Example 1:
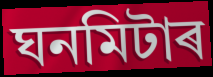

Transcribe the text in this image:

ঘনমিটাৰ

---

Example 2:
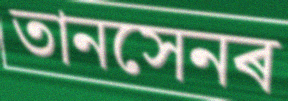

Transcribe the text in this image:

তানসেনৰ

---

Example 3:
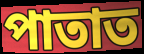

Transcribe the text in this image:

পাতাত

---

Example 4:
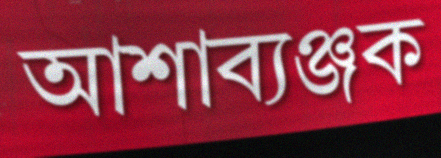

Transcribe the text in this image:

আশাব্যঞ্জক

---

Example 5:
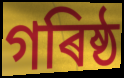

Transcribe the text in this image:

গৰিষ্ঠ